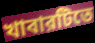
খাবারটিতে